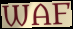
WAF